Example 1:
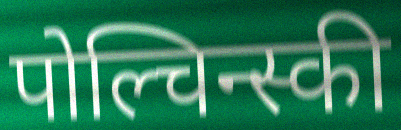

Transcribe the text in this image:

पोल्चिन्स्की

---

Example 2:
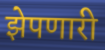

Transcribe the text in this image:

झेपणारी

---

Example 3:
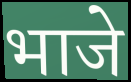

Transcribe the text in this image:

भाजे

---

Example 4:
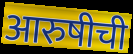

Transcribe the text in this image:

आरुषीची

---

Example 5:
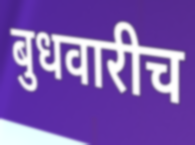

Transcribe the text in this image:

बुधवारीच